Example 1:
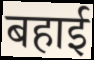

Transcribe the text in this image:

बहाई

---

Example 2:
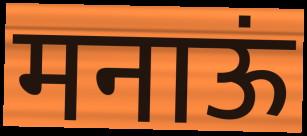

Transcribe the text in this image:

मनाऊं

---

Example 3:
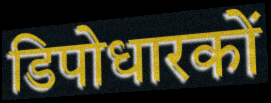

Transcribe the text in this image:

डिपोधारकों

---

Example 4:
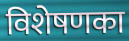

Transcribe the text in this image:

विशेषणका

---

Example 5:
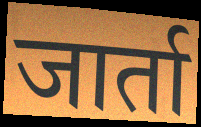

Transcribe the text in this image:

जार्ता